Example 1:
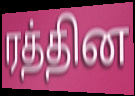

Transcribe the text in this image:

ரத்தின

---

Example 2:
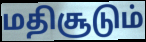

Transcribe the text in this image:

மதிசூடும்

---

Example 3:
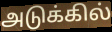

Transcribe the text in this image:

அடுக்கில்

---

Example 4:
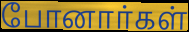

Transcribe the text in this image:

போனார்கள்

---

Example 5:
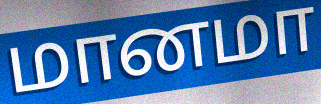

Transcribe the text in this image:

மானமா